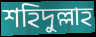
শহিদুল্লাহ